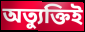
অত্যুক্তিই